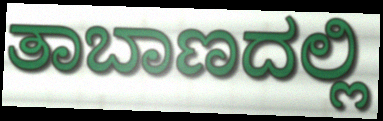
ತಾಬಾಣದಲ್ಲಿ